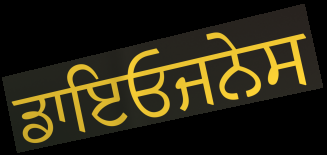
ਡਾਇਓਜਨੇਸ